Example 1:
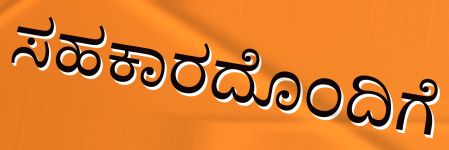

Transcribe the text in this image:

ಸಹಕಾರದೊಂದಿಗೆ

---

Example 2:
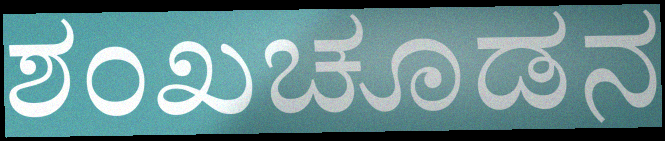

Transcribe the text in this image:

ಶಂಖಚೂಡನ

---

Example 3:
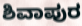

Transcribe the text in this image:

ಶಿವಾಪುರ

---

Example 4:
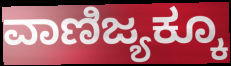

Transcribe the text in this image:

ವಾಣಿಜ್ಯಕ್ಕೂ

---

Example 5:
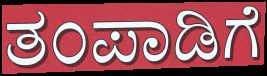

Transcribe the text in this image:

ತಂಪಾಡಿಗೆ